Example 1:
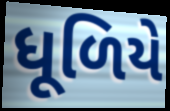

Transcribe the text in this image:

ધૂળિયે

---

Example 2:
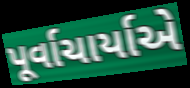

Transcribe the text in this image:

પૂર્વાચાર્યાએ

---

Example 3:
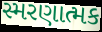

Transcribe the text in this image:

સ્મરણાત્મક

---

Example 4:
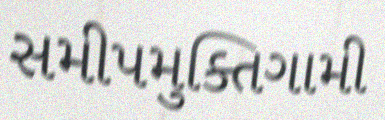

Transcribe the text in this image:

સમીપમુક્તિગામી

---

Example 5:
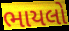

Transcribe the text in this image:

ભાયલો